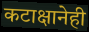
कटाक्षानेही